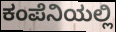
ಕಂಪೆನಿಯಲ್ಲಿ